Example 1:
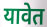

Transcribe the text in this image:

यावेत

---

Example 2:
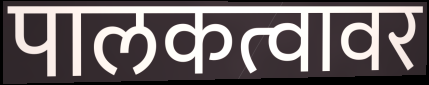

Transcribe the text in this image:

पालकत्वावर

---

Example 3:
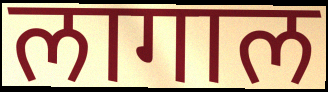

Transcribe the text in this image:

लागाल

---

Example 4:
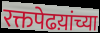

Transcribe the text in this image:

रक्तपेढय़ांच्या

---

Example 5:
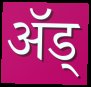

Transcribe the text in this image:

ॲड्